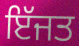
ਇੱਜਤ